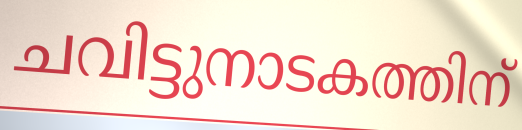
ചവിട്ടുനാടകത്തിന്